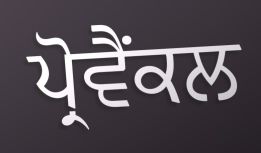
ਪ੍ਰੋਵੈਂਕਲ